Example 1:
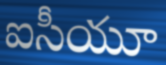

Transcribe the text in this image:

ఐసీయూ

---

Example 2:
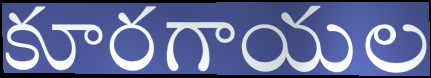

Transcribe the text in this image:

కూరగాయల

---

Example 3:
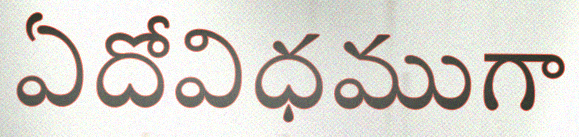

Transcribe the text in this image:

ఏదోవిధముగా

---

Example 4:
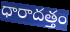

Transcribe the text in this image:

ధారాదత్తం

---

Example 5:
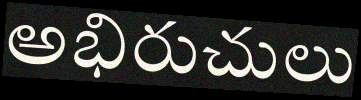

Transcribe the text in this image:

అభిరుచులు